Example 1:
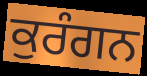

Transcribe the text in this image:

ਕੁਰੰਗਨ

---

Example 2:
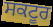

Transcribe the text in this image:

ਸਕਟੂਰ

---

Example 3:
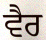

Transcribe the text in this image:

ਵੈਰ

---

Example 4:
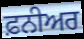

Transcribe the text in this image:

ਫ਼ਨੀਅਰ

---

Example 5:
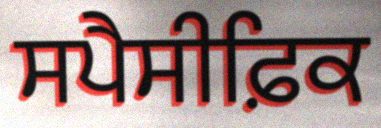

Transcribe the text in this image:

ਸਪੈਸੀਫ਼ਿਕ